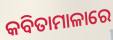
କବିତାମାଳାରେ